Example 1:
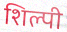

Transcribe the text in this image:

शिल्पी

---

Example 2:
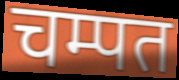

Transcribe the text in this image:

चम्पत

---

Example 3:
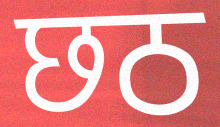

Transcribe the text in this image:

छठ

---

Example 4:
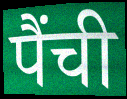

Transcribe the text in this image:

पैंची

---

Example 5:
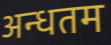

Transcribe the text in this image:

अन्धतम